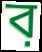
ব়